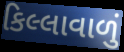
કિલ્લાવાળું